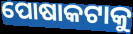
ପୋଷାକଟାକୁ